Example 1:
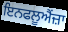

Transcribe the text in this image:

ਇਨਫਲੂਐਂਜ਼ਾ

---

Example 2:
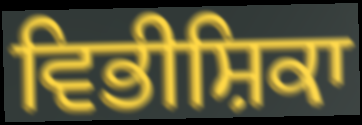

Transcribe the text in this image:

ਵਿਭੀਸ਼ਿਕਾ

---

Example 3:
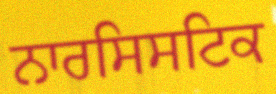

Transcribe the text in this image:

ਨਾਰਸਿਸਟਿਕ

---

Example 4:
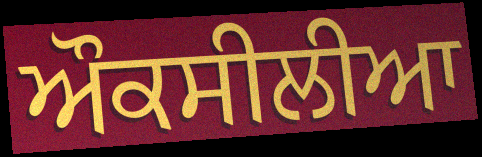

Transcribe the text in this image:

ਔਕਸੀਲੀਆ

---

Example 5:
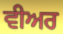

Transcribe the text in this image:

ਵੀਅਰ